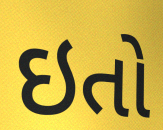
ઇતો